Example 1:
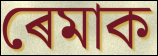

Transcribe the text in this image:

ৰেমাক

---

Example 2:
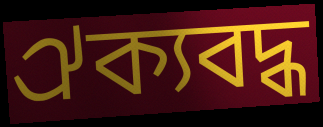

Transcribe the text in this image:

ঐক্যবদ্ধ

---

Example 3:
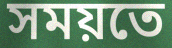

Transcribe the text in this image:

সময়তে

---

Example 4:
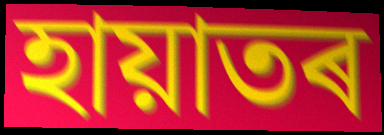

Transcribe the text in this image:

হায়াতৰ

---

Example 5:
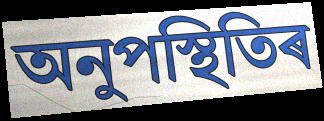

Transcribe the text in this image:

অনুপস্থিতিৰ